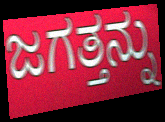
ಜಗತ್ತನ್ನು